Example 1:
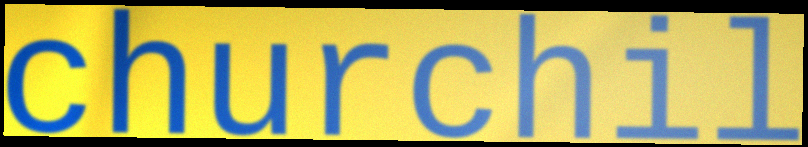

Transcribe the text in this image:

churchil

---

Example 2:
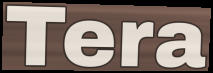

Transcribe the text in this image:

Tera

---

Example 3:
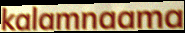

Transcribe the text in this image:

kalamnaama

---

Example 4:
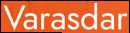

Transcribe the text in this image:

Varasdar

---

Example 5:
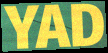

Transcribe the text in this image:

YAD